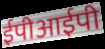
ईपीआईपी